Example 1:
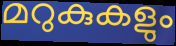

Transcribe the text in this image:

മറുകുകളും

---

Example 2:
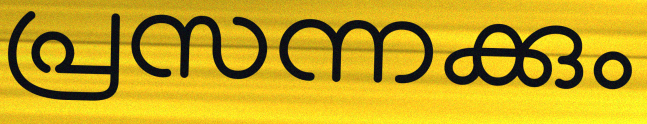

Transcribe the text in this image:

പ്രസന്നക്കും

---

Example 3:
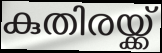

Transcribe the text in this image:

കുതിരയ്ക്ക്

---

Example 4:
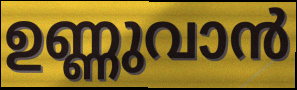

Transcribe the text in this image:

ഉണ്ണുവാൻ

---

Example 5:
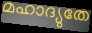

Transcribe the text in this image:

മഹാദ്യുതേ